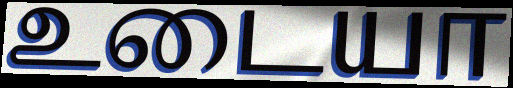
உடையா